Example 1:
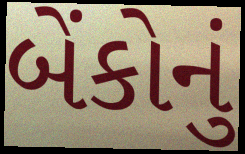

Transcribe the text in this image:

બેંકોનું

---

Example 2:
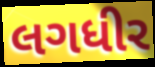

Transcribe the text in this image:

લગધીર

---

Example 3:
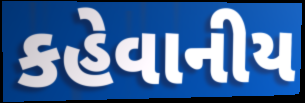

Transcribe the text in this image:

કહેવાનીય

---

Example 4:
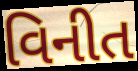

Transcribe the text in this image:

વિનીત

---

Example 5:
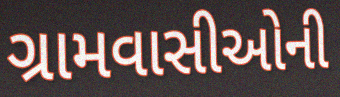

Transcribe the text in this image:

ગ્રામવાસીઓની